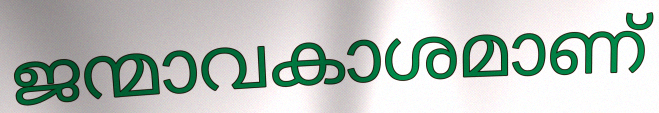
ജന്മാവകാശമാണ്